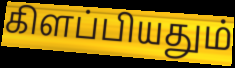
கிளப்பியதும்